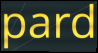
pard